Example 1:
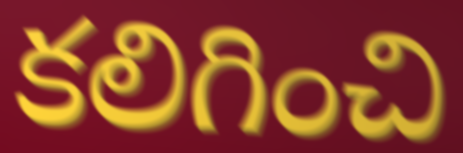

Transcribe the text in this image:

కలిగించి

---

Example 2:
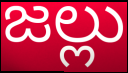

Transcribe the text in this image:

జల్లు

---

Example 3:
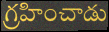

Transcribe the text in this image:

గ్రహించాడు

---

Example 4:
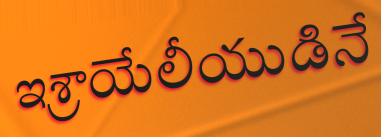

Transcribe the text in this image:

ఇశ్రాయేలీయుడినే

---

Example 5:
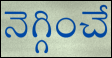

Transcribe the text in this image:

నెగ్గించే